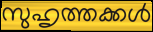
സുഹൃത്തക്കൾ